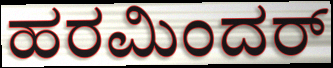
ಹರಮಿಂದರ್